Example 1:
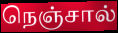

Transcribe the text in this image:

நெஞ்சால்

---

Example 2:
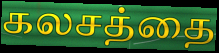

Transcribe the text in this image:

கலசத்தை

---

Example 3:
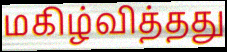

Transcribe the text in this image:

மகிழ்வித்தது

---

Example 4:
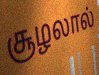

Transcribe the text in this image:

சூழலால்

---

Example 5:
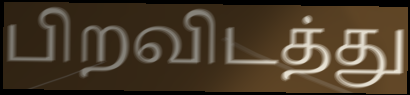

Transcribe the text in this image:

பிறவிடத்து